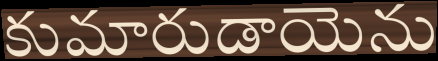
కుమారుడాయెను